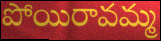
పోయిరావమ్మ